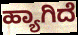
ಹ್ಯಾಗಿದೆ